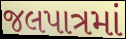
જલપાત્રમાં